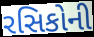
રસિકોની